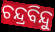
ଚନ୍ଦ୍ରବିନ୍ଦୁ